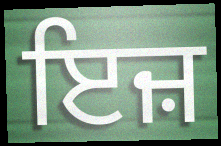
ਇਜ਼